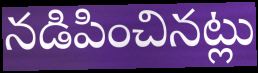
నడిపించినట్లు